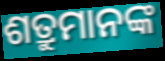
ଶତ୍ରୁମାନଙ୍କ